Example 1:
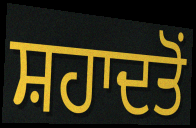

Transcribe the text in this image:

ਸ਼ਹਾਦਤੋਂ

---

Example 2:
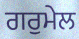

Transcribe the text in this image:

ਗਰੁਮੇਲ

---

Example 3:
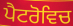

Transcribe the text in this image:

ਪੈਟਰੋਵਿਚ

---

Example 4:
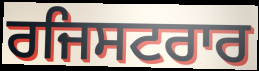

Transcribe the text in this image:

ਰਜਿਸਟਰਾਰ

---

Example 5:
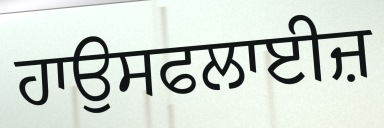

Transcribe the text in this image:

ਹਾਉਸਫਲਾਈਜ਼